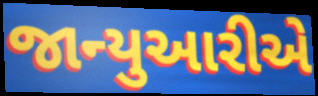
જાન્યુઆરીએ